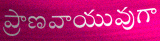
ప్రాణవాయువుగా